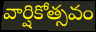
వార్షికోత్సవం